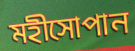
মহীসোপান